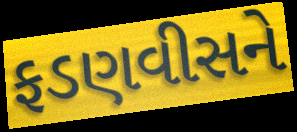
ફડણવીસને